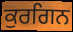
ਕੁਰਗਿਨ